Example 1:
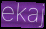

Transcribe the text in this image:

ekaj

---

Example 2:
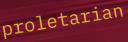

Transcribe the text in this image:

proletarian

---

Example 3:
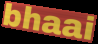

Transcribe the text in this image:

bhaai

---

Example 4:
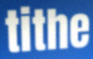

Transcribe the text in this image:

tithe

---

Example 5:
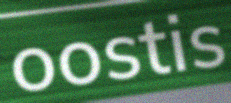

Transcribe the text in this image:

oostis